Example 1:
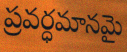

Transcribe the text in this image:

ప్రవర్ధమానమై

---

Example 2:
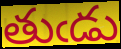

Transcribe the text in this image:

తుఁడు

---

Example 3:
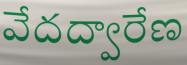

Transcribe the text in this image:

వేదద్వారేణ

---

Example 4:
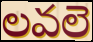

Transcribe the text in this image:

లవలె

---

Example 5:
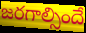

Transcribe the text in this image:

జరగాల్సిందే